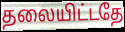
தலையிட்டதே